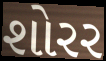
શોરર